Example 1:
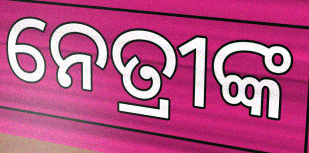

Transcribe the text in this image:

ନେତ୍ରୀଙ୍କ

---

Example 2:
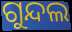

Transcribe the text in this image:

ଗୁନ୍ଦଲ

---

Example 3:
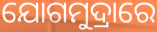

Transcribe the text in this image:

ଯୋଗମୁଦ୍ରାରେ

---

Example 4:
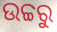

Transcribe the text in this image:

ଉଚ୍ଚରୁ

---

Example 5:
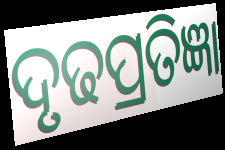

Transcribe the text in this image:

ଦୃଢପ୍ରତିଜ୍ଞା